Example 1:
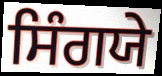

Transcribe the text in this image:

ਸਿੰਗਯੇ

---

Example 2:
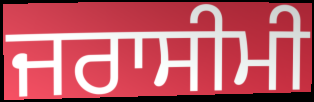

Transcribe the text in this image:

ਜਰਾਸੀਮੀ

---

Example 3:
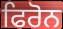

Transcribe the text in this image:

ਫਿਰੋਨ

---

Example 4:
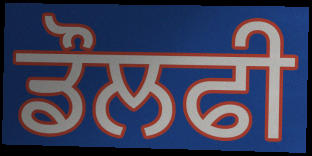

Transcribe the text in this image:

ਡੌਲਫੀ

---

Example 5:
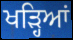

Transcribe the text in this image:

ਖੜ੍ਹਿਆਂ